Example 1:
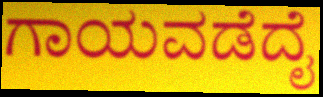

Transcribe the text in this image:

ಗಾಯವಡೆದೈ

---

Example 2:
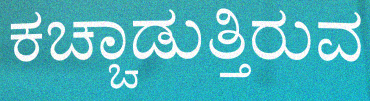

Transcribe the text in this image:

ಕಚ್ಚಾಡುತ್ತಿರುವ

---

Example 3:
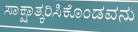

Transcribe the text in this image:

ಸಾಕ್ಷಾತ್ಕರಿಸಿಕೊಂಡವನು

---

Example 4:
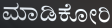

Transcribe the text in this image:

ಮಾಡಿಕೋರಿ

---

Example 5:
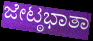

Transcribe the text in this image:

ಜೇಟ್ಠಭಾತಾ